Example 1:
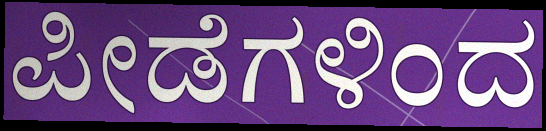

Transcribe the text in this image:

ಪೀಡೆಗಳಿಂದ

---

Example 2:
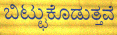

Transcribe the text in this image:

ಬಿಟ್ಟುಕೊಡುತ್ತವೆ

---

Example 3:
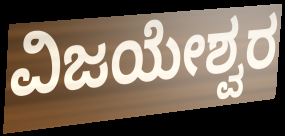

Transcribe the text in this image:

ವಿಜಯೇಶ್ವರ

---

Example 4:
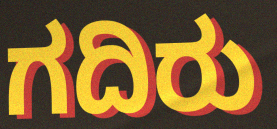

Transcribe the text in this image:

ಗದಿರು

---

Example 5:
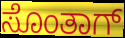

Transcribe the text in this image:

ಸೊಂತಾಗ್